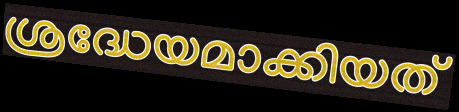
ശ്രദ്ധേയമാക്കിയത്